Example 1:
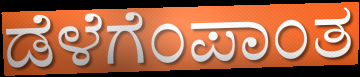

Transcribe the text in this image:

ಡೆಳೆಗೆಂಪಾಂತ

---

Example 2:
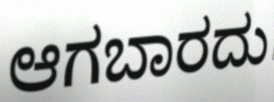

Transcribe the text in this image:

ಆಗಬಾರದು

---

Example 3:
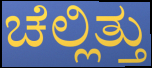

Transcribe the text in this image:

ಚೆಲ್ಲಿತ್ತು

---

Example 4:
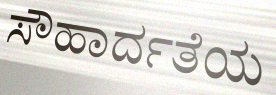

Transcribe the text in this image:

ಸೌಹಾರ್ದತೆಯ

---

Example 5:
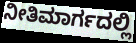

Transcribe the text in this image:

ನೀತಿಮಾರ್ಗದಲ್ಲಿ